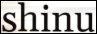
shinu